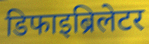
डिफाइब्रिलेटर